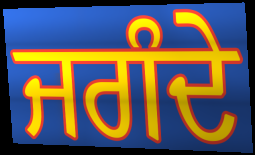
ਜਗੰਦੇ